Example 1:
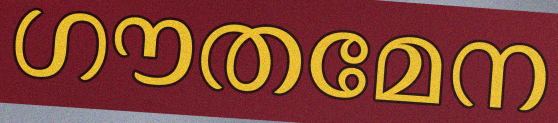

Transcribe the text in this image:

ഗൗതമേന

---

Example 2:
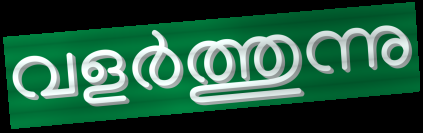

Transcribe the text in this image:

വളർത്തുന്നു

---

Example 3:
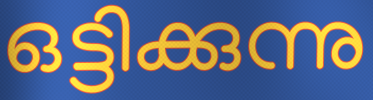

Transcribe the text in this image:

ഒട്ടിക്കുന്നു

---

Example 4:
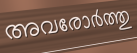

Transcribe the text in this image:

അവരോർത്തു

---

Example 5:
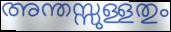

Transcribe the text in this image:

അന്തസ്സുള്ളതും